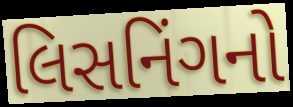
લિસનિંગનો